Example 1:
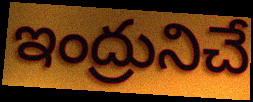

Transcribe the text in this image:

ఇంద్రునిచే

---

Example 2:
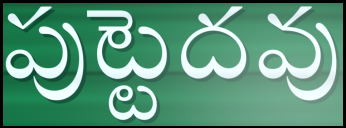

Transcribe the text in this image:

పుట్టెదవు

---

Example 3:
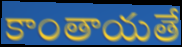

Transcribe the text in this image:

కాంతాయతే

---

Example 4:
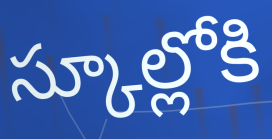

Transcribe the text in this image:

స్కూల్లోకి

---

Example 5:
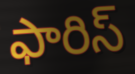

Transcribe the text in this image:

ఫారిస్